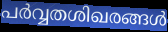
പർവ്വതശിഖരങ്ങൾ